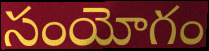
సంయోగం